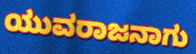
ಯುವರಾಜನಾಗು